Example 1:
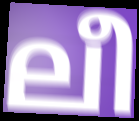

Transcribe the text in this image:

ലീ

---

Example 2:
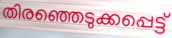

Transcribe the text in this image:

തിരഞ്ഞെടുക്കപ്പെട്ട്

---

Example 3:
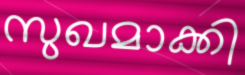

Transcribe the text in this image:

സുഖമാക്കി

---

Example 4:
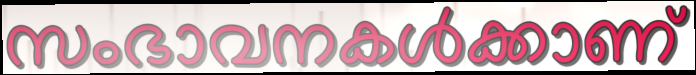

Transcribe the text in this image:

സംഭാവനകൾക്കാണ്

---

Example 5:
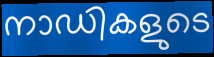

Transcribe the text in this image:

നാഡികളുടെ